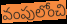
వంపులోంచి